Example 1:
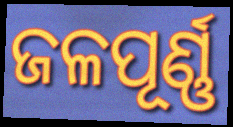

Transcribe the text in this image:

ଜଳପୂର୍ଣ୍ଣ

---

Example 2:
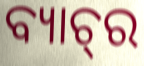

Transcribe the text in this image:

ବ୍ୟାଚ୍‌ର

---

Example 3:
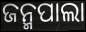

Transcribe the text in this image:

ଜନ୍ମପାଲା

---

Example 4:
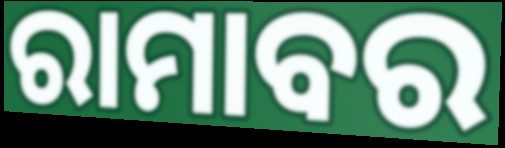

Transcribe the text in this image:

ରାମାବର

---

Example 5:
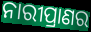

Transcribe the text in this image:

ନାରୀପ୍ରାଣର